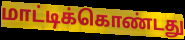
மாட்டிக்கொண்டது